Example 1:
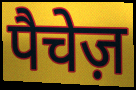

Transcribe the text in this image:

पैचेज़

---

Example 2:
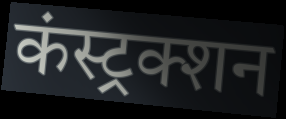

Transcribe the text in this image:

कंस्ट्रक्शन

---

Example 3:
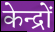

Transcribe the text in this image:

केन्द्रों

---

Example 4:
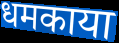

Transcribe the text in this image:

धमकाया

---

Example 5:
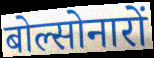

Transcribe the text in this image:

बोल्सोनारों